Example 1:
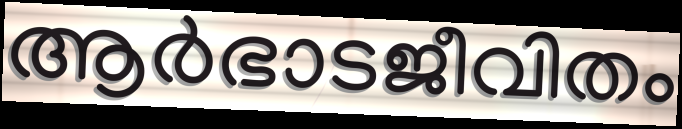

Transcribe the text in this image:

ആർഭാടജീവിതം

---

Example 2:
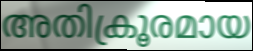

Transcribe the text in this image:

അതിക്രൂരമായ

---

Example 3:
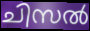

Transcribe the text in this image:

ചിസൽ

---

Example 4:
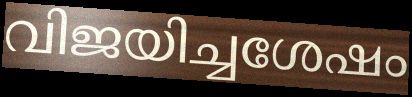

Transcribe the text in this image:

വിജയിച്ചശേഷം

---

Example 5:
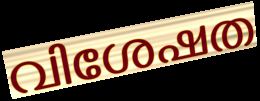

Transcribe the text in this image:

വിശേഷത